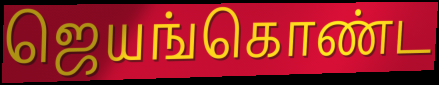
ஜெயங்கொண்ட